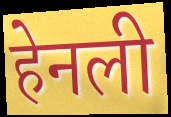
हेनली